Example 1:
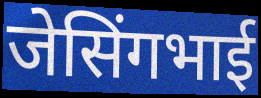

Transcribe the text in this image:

जेसिंगभाई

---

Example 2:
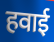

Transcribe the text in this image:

हवाई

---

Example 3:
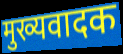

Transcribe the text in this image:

मुख्यवादक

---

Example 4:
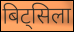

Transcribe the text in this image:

बिट्सिला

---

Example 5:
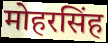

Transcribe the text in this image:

मोहरसिंह